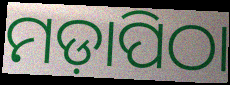
ମଡ଼ାପିଠା